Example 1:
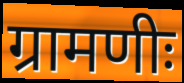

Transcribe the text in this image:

ग्रामणीः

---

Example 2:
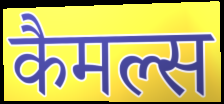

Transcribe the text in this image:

कैमल्स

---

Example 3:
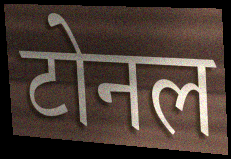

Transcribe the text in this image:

टोनल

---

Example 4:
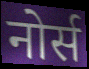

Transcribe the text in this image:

नोर्स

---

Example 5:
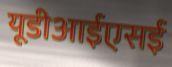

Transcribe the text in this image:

यूडीआईएसई